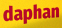
daphan